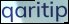
qaritip